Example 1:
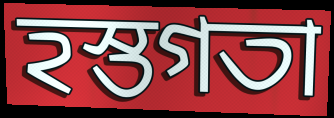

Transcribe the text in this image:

হস্তগতা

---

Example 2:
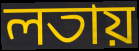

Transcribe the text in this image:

লতায়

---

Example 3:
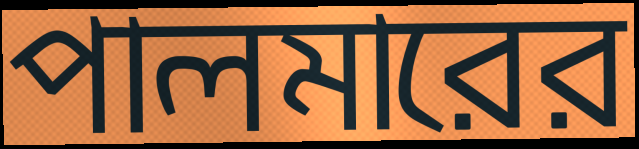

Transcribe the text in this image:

পালমারের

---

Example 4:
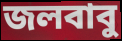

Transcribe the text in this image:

জলবাবু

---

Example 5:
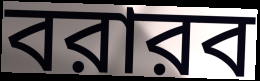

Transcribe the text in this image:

বরারব